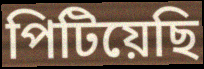
পিটিয়েছি